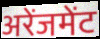
अरेंजमेंट